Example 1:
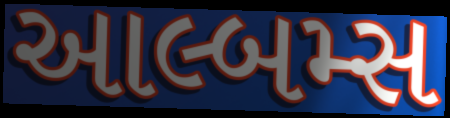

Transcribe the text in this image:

આલ્બમ્સ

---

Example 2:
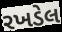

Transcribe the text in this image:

રખડેલ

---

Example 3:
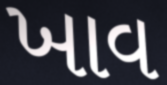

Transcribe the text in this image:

ખાવ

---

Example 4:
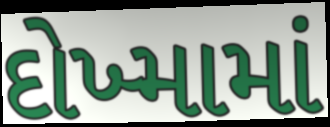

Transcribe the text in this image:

દોખ્મામાં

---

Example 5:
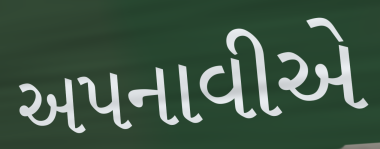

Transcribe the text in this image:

અપનાવીએ